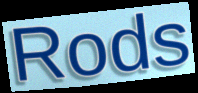
Rods